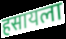
हसायला